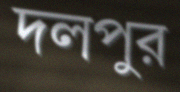
দলপুর